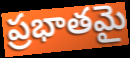
ప్రభాతమై